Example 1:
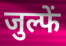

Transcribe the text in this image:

जुल्फें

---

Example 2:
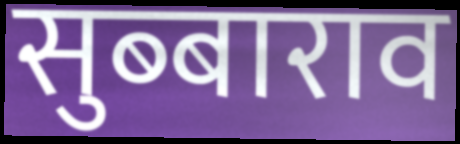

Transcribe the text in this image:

सुब्‍बाराव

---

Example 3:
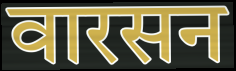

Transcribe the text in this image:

वारसन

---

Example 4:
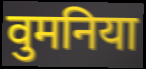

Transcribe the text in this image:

वुमनिया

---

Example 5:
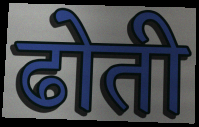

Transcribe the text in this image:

ढोती